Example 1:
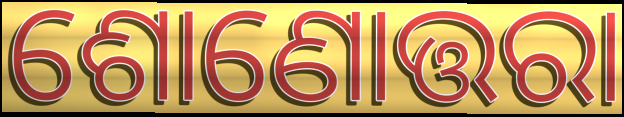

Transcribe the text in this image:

ଶୋଣୋତ୍ତରା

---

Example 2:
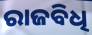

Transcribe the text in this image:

ରାଜବିଧି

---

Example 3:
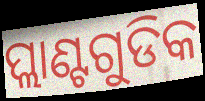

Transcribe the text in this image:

ପ୍ଲାଣ୍ଟଗୁଡିକ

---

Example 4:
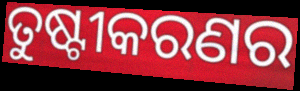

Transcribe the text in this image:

ତୁଷ୍ଟୀକରଣର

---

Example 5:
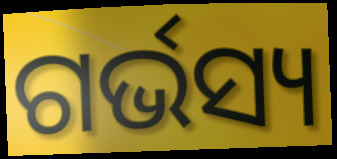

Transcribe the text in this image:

ଗର୍ଭସ୍ୟ